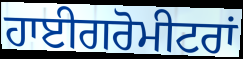
ਹਾਈਗਰੋਮੀਟਰਾਂ